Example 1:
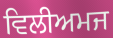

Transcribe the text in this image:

ਵਿਲੀਅਮਜ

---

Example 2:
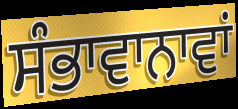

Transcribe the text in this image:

ਸੰਭਾਵਾਨਾਵਾਂ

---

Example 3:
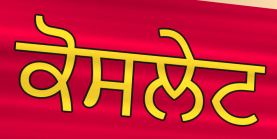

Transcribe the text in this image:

ਕੋਸਲੇਟ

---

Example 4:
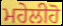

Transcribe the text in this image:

ਮਹੇਲੀਹੋ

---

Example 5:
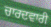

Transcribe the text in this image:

ਚਾਰਦਵਾਰੀ